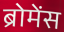
ब्रोमेंस